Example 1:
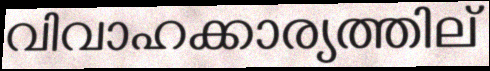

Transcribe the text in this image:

വിവാഹക്കാര്യത്തില്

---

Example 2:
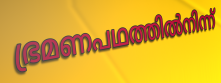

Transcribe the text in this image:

ഭ്രമണപഥത്തിൽനിന്ന്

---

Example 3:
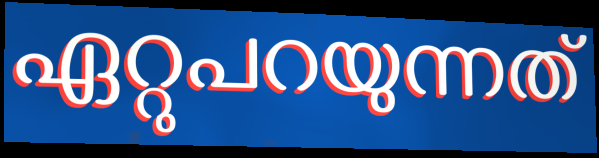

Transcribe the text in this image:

ഏറ്റുപറയുന്നത്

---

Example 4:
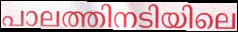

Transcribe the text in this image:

പാലത്തിനടിയിലെ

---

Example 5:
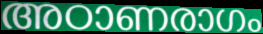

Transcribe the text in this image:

അഠാണരാഗം